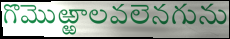
గొమొఱ్ఱాలవలెనగును